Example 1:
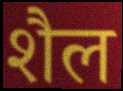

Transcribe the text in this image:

शैल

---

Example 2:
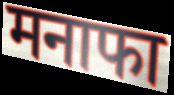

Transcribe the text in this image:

मनाफा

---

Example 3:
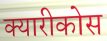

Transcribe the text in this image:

क्यारीकोस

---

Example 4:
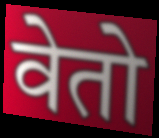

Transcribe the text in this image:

वेतो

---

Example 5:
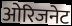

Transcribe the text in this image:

ओरिजनेट